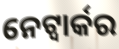
ନେଟ୍ୱାର୍କର